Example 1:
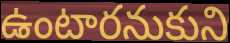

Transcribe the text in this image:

ఉంటారనుకుని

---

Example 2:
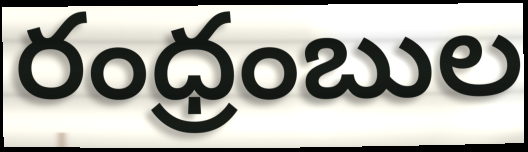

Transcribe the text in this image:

రంధ్రంబుల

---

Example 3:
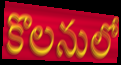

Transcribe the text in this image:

కొలనులో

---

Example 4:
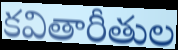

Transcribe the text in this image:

కవితారీతుల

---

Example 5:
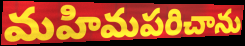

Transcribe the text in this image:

మహిమపరిచాను